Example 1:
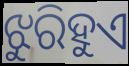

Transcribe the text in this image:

ଝୁରିହୁଏ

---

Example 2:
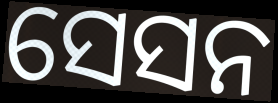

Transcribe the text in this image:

ସେସନ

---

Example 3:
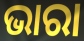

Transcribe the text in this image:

ଭାରା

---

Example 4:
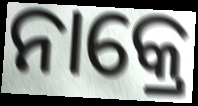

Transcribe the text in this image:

ନାକ୍ରେ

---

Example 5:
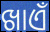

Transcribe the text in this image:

ଖାଏଁ